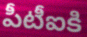
పీటీఐకి